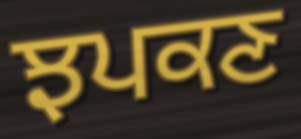
ਝਪਕਣ